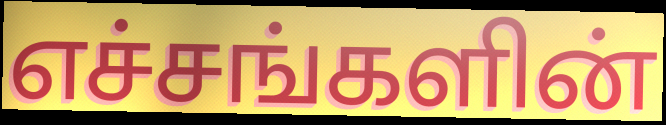
எச்சங்களின்